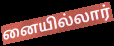
னையில்லார்